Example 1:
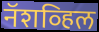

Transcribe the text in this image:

नॅशव्हिल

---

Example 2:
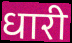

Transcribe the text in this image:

धारी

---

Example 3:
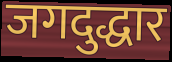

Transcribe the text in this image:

जगदुद्धार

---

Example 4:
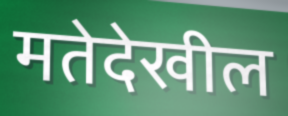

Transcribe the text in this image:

मतेदेखील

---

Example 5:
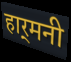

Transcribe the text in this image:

हार्मनी